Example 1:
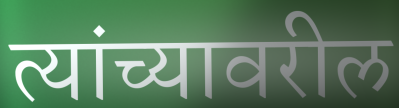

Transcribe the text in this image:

त्यांच्यावरील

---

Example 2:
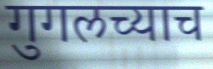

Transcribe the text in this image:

गुगलच्याच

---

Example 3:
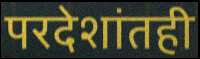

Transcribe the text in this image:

परदेशांतही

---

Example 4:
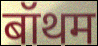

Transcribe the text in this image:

बॉथम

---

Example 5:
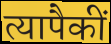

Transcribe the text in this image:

त्यापैकीं